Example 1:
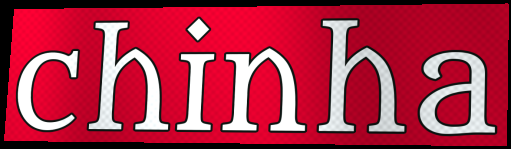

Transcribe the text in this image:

chinha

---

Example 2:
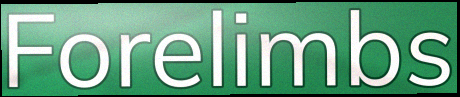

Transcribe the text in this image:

Forelimbs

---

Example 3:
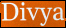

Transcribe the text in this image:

Divya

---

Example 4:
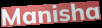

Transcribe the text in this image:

Manisha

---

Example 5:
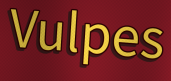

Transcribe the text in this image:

Vulpes